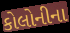
કોલોનીના